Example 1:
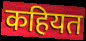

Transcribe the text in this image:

कहियत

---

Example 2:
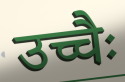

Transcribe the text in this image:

उच्चैः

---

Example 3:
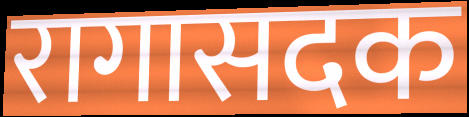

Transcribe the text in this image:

रागासदक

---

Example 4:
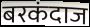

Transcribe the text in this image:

बरकंदाज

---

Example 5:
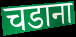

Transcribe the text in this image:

चडाना